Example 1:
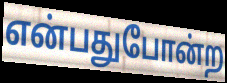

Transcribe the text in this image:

என்பதுபோன்ற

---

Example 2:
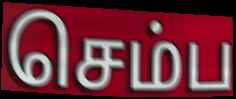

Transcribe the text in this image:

செம்ப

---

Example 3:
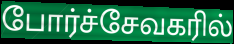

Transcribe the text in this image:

போர்ச்சேவகரில்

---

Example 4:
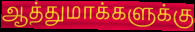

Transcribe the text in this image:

ஆத்துமாக்களுக்கு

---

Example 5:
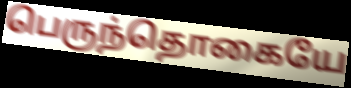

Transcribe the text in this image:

பெருந்தொகையே